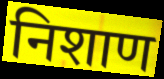
निशाण